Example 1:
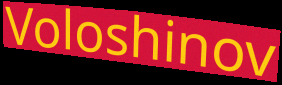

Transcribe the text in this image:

Voloshinov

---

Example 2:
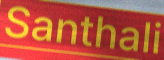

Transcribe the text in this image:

Santhali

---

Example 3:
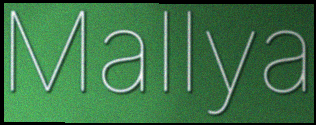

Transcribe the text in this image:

Mallya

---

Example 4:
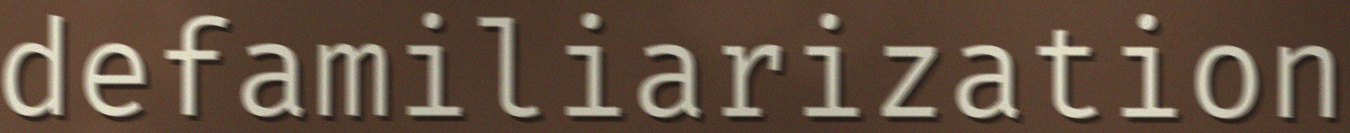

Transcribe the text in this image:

defamiliarization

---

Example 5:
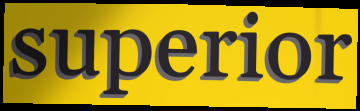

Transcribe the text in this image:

superior